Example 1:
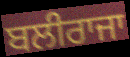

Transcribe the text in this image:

ਬਲੀਰਾਜਾ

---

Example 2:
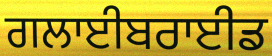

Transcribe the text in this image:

ਗਲਾਈਬਰਾਈਡ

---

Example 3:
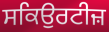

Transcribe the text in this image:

ਸਕਿਉਰਟੀਜ਼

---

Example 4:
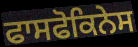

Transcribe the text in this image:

ਫਾਸਫੋਕਿਨੇਸ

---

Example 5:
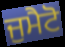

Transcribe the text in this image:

ਜੁਮੈਟੋ